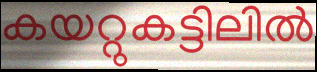
കയറ്റുകട്ടിലിൽ